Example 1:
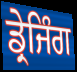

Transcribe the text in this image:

ਡ੍ਰੇਜਿੰਗ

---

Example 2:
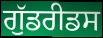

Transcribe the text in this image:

ਗੁੱਡਰੀਡਸ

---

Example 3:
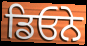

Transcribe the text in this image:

ਡਿਓਨੇ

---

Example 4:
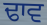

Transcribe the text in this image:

ਢਾਵ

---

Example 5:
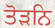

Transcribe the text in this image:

ਤੋੜਨਿ